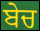
ਬੇਚ